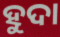
ହୁଦା